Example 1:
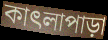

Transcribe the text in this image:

কাৎলাপাড়া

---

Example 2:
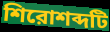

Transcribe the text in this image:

শিরোশব্দটি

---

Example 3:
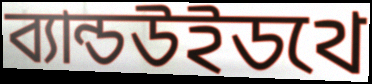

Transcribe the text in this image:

ব্যান্ডউইডথে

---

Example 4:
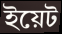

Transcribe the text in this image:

ইয়েট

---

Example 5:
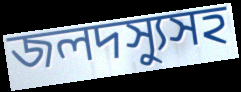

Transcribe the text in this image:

জলদস্যুসহ